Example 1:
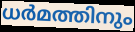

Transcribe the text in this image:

ധർമത്തിനും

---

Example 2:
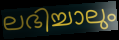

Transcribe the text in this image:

ലഭിച്ചാലും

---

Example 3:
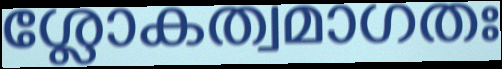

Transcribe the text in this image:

ശ്ലോകത്വമാഗതഃ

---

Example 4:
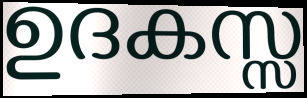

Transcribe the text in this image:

ഉദകസ്സ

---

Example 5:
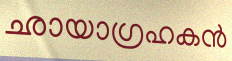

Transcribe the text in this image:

ഛായാഗ്രഹകൻ